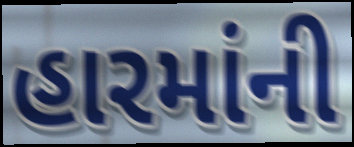
હારમાંની